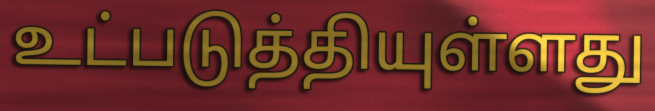
உட்படுத்தியுள்ளது